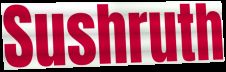
Sushruth